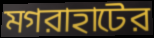
মগরাহাটের